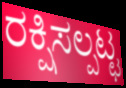
ರಕ್ಷಿಸಲ್ಪಟ್ಟ